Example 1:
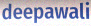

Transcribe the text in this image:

deepawali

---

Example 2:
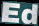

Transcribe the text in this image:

Ed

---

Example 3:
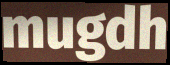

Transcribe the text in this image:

mugdh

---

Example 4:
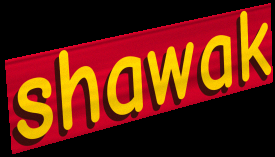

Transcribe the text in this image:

shawak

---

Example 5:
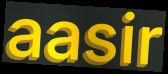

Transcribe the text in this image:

aasir